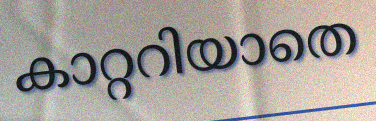
കാറ്ററിയാതെ